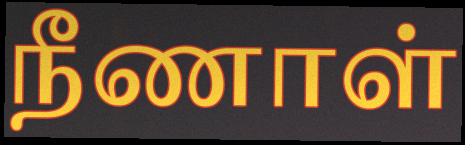
நீணாள்